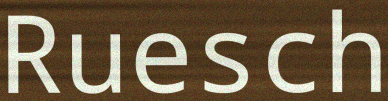
Ruesch